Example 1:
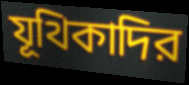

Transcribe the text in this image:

যূথিকাদির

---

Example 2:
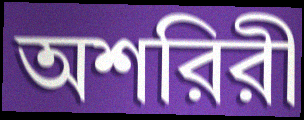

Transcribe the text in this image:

অশরিরী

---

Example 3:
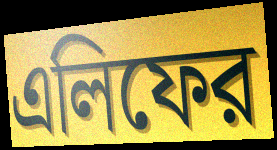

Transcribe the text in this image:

এলিফের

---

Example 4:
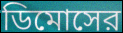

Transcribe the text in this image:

ডিমোসের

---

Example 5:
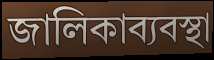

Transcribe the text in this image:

জালিকাব্যবস্থা